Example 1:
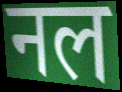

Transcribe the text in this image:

नल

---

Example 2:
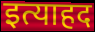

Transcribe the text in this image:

इत्याहद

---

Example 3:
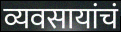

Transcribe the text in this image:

व्यवसायांचं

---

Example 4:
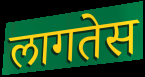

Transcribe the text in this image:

लागतेस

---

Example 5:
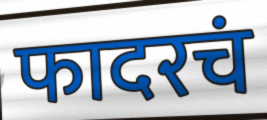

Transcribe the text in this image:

फादरचं